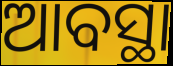
ଆବସ୍ଥା